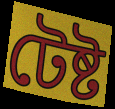
টেষ্ট